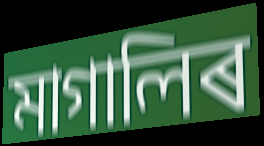
মাগালিৰ